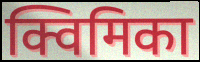
क्विमिका